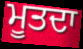
ਮੂਤਦਾ